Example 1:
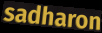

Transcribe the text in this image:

sadharon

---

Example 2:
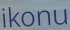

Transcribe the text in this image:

ikonu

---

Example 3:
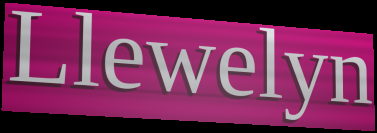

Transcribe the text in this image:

Llewelyn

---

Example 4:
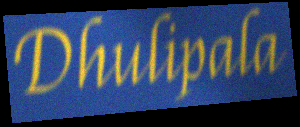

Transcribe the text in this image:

Dhulipala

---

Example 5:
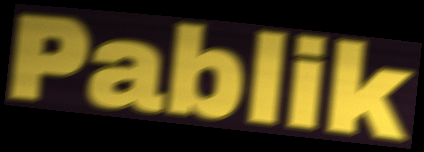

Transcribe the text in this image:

Pablik